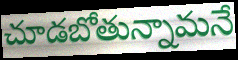
చూడబోతున్నామనే